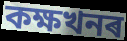
কক্ষখনৰ